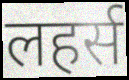
लहर्स